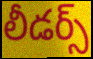
లీడర్స్